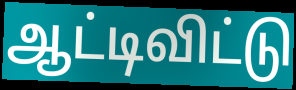
ஆட்டிவிட்டு